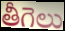
తీగెలు